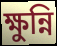
ক্ষুন্নি